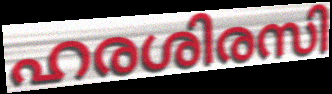
ഹരശിരസി